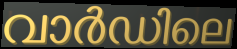
വാർഡിലെ